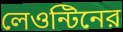
লেওন্টিনের